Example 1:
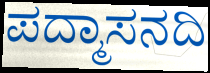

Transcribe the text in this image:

ಪದ್ಮಾಸನದಿ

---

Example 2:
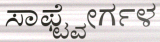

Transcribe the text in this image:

ಸಾಫ್ಟ್ವೇರ್ಗಳ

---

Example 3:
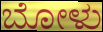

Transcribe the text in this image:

ಬೋಳು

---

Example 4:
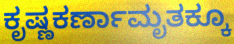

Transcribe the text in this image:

ಕೃಷ್ಣಕರ್ಣಾಮೃತಕ್ಕೂ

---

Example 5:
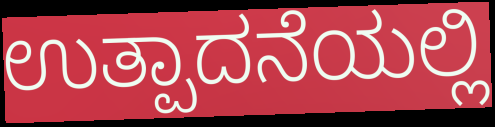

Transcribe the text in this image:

ಉತ್ಪಾದನೆಯಲ್ಲಿ